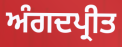
ਅੰਗਦਪ੍ਰੀਤ